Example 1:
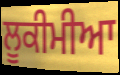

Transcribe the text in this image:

ਲੂਕੀਮੀਆ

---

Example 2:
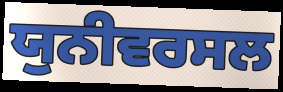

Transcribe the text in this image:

ਯੁਨੀਵਰਸਲ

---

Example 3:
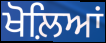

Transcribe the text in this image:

ਖੋਲ਼ਿਆਂ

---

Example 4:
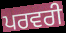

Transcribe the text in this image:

ਪਰਵਰੀ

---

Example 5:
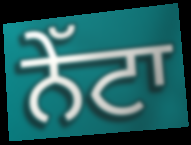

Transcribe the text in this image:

ਨੇੱਟਾ